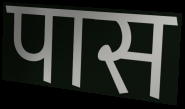
पास